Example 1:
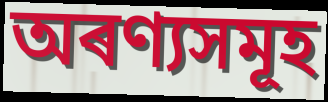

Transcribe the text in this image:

অৰণ্যসমূহ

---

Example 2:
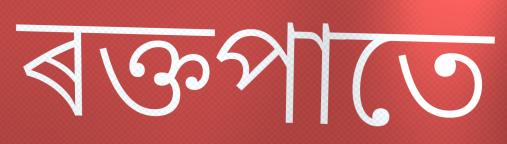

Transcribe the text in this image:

ৰক্তপাতে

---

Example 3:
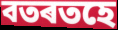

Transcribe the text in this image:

বতৰতহে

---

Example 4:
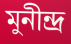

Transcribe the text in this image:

মুনীন্দ্ৰ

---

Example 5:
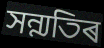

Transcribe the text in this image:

সন্মতিৰ